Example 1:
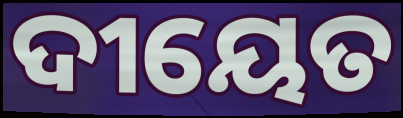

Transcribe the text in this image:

ଦୀୟେତ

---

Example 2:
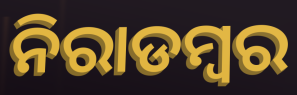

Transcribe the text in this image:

ନିରାଡମ୍ବର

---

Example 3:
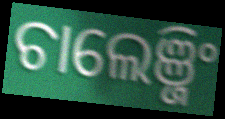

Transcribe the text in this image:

ଚାଲେଞ୍ଜିଂ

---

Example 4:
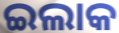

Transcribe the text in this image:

ଇଲାକ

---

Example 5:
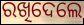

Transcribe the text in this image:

ରଖିଦେଲେ